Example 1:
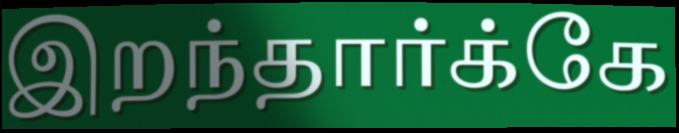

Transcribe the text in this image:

இறந்தார்க்கே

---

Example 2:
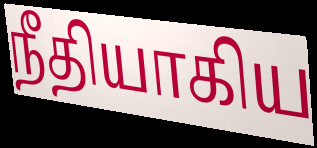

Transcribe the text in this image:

நீதியாகிய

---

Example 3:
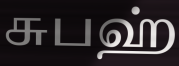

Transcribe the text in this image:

சுபஹ்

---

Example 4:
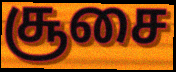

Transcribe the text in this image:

சூசை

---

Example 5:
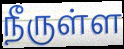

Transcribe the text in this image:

நீருள்ள